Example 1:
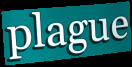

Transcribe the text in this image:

plague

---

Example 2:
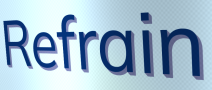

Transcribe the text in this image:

Refrain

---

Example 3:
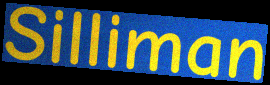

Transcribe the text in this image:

Silliman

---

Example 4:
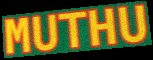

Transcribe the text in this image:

MUTHU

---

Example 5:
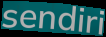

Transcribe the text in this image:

sendiri